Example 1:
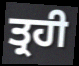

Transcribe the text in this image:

ਤ੍ਰਹੀ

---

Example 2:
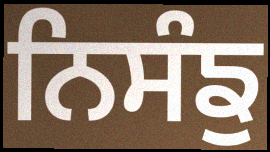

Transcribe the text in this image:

ਨਿਸੰਙੁ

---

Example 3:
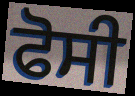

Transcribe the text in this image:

ਫੋਸੀ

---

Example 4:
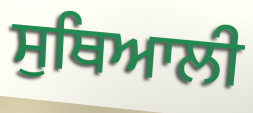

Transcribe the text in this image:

ਸੁਥਿਆਲੀ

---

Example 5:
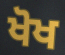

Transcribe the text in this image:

ਖੋਖ